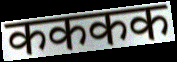
कककक